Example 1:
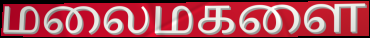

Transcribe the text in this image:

மலைமகளை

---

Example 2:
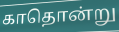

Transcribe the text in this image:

காதொன்று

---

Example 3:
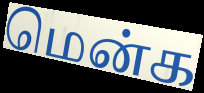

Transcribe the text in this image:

மென்க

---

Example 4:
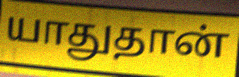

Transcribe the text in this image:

யாதுதான்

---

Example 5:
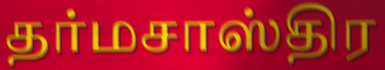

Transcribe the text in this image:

தர்மசாஸ்திர